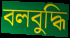
বলবুদ্ধি